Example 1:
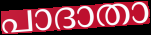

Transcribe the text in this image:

പാദാതാ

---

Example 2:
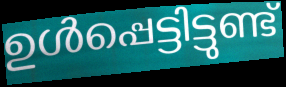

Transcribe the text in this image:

ഉൾപ്പെട്ടിട്ടുണ്ട്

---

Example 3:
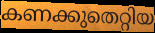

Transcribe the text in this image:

കണക്കുതെറ്റിയ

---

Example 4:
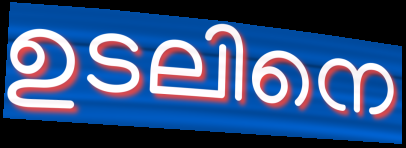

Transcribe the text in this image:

ഉടലിനെ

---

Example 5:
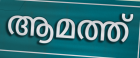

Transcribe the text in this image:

ആമത്ത്